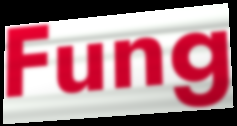
Fung